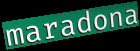
maradona